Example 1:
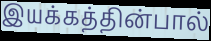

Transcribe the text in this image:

இயக்கத்தின்பால்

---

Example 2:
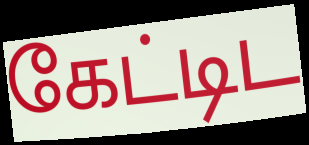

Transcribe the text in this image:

கேட்டிட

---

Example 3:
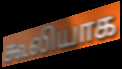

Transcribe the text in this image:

கூலியாக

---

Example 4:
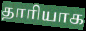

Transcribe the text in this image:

தாரியாக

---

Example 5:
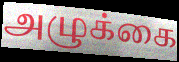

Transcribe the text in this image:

அழுக்கை